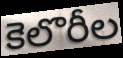
కెలొరీల